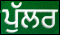
ਪੁੱਲਰ